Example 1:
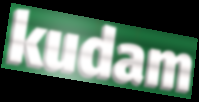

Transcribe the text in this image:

kudam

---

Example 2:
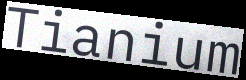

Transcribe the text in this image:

Tianium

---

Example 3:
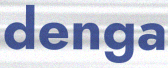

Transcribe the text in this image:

denga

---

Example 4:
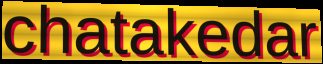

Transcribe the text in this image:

chatakedar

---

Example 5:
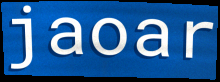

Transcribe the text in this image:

jaoar